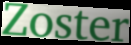
Zoster